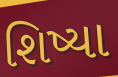
શિષ્યા